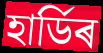
হাৰ্ডিৰ